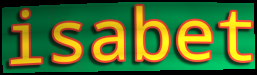
isabet